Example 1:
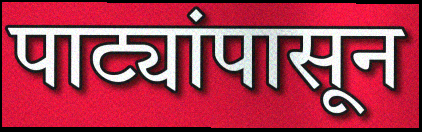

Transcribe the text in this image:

पाट्यांपासून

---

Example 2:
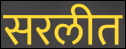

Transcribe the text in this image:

सरलीत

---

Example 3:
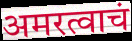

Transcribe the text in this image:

अमरत्वाचं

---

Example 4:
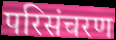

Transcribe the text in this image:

परिसंचरण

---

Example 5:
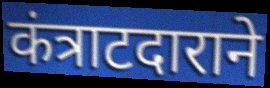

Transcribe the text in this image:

कंत्राटदाराने